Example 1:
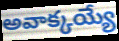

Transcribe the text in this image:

అవాక్కయ్యే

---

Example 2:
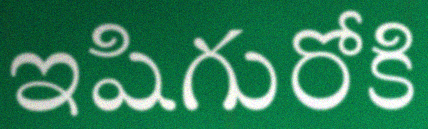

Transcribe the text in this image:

ఇషిగురోకి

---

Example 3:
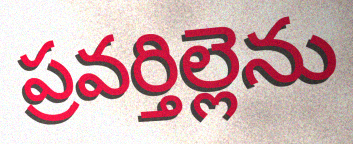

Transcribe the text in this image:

ప్రవర్తిల్లెను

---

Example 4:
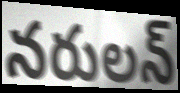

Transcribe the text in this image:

నరులన్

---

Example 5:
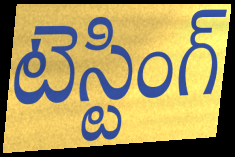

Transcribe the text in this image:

టెస్టింగ్